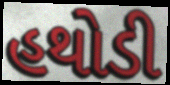
હથોડી